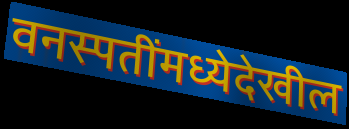
वनस्पतींमध्येदेखील